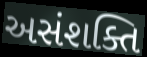
અસંશક્તિ